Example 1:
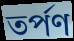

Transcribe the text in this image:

তৰ্পণ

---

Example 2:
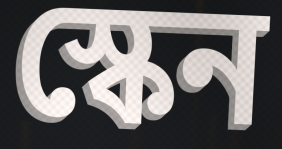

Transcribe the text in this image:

স্কেন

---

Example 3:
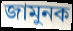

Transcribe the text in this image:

জামুনক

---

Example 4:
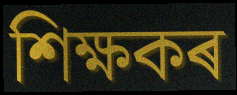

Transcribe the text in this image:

শিক্ষকৰ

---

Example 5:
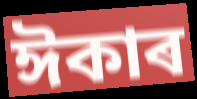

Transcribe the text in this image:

ঈকাৰ